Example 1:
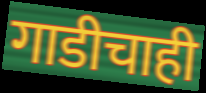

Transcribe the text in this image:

गाडीचाही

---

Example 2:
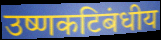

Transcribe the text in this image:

उष्णकटिबंधीय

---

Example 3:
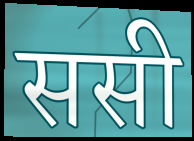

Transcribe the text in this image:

ससी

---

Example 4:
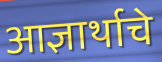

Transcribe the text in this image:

आज्ञार्थाचे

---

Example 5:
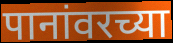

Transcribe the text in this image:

पानांवरच्या